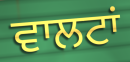
ਵਾਲਟਾਂ